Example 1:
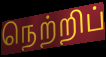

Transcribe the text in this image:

நெற்றிப்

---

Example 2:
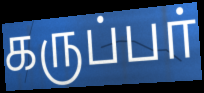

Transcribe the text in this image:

கருப்பர்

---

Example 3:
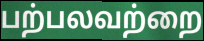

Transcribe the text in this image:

பற்பலவற்றை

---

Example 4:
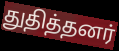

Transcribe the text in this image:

துதித்தனர்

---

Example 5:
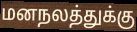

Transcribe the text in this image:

மனநலத்துக்கு